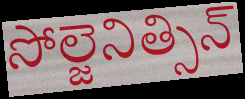
సోల్జెనిత్సిన్